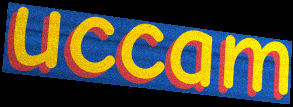
uccam